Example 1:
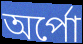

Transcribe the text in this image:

অর্পো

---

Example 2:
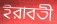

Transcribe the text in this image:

ইরাবতী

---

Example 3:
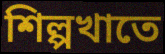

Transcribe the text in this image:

শিল্পখাতে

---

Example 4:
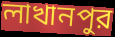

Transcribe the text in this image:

লাখানপুর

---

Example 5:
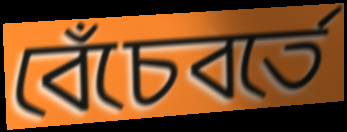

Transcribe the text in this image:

বেঁচেবর্তে